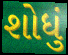
શોધું